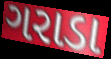
ગરાડા